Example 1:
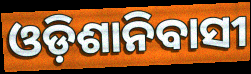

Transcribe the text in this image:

ଓଡ଼ିଶାନିବାସୀ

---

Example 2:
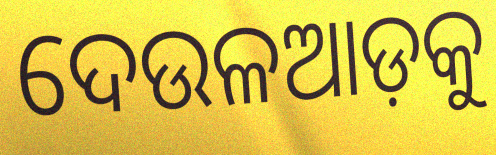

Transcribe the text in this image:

ଦେଉଳଆଡ଼କୁ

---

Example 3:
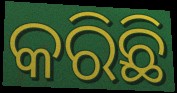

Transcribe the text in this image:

କରିଛି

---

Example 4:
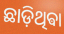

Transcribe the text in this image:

ଛାଡ଼ିଥିଵା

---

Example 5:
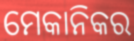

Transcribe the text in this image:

ମେକାନିକର